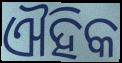
ଐହିକ